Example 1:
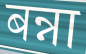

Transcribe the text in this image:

बन्ना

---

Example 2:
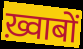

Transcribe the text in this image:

ख़्वाबों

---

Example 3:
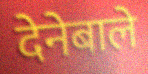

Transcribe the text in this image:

देनेबाले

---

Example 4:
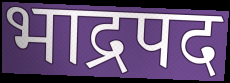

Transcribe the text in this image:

भाद्रपद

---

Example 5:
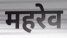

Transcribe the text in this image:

महरेव